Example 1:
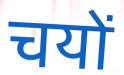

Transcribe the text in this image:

चयों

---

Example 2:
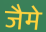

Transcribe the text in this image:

जैमे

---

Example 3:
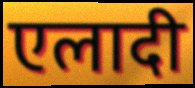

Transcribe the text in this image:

एलादी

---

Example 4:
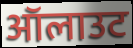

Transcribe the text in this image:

ऑलाउट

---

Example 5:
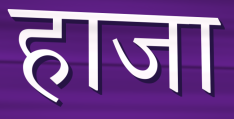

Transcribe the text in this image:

हाजा